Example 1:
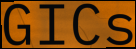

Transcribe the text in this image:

GICs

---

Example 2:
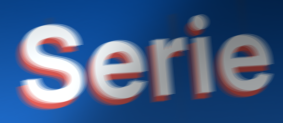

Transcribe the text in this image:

Serie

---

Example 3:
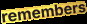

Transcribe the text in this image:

remembers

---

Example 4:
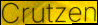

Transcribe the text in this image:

Crutzen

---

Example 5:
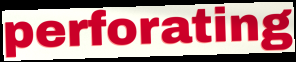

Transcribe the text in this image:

perforating